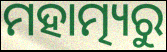
ମହାତ୍ମ୍ୟରୁ